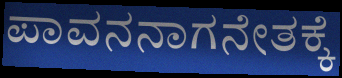
ಪಾವನನಾಗನೇತಕ್ಕೆ